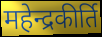
महेन्द्रकीर्ति